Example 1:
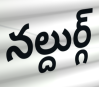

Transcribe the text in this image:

నల్దుర్గ్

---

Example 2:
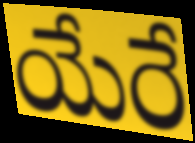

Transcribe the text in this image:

యేరే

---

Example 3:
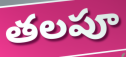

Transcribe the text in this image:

తలపూ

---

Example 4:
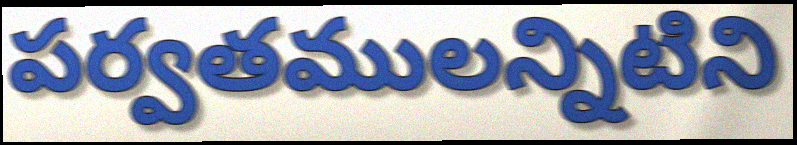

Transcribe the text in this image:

పర్వతములన్నిటిని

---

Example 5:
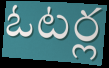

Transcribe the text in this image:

ఓటర్ల